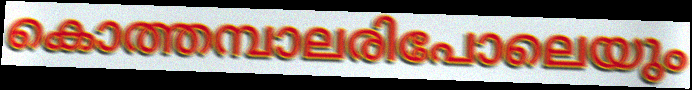
കൊത്തമ്പാലരിപോലെയും